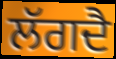
ਲੱਗਦੈ